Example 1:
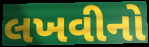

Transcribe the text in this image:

લખવીનો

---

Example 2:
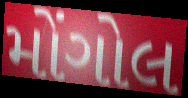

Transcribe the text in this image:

મોંગોલ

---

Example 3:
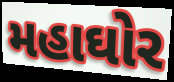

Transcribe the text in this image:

મહાઘોર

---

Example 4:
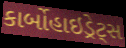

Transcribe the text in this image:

કાર્બોહાઇડ્રેટ્સ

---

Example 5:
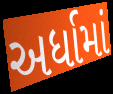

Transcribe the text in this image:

અર્ધામાં